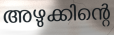
അഴുക്കിന്റെ